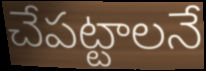
చేపట్టాలనే